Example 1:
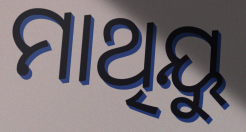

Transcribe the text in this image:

ମାଥିୟୁ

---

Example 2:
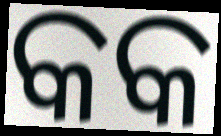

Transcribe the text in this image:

କକ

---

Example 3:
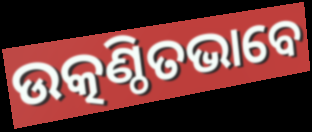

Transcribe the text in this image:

ଉତ୍କଣ୍ଠିତଭାବେ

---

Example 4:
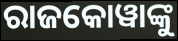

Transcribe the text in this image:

ରାଜକୋୱାଙ୍କୁ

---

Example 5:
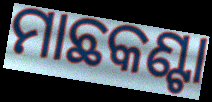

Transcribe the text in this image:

ମାଛକଣ୍ଟା